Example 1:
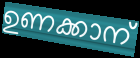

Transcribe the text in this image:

ഉണക്കാന്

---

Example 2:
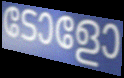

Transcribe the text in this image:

ടോളോ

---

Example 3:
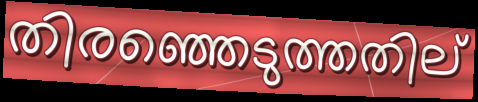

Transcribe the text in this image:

തിരഞ്ഞെടുത്തതില്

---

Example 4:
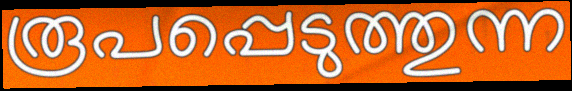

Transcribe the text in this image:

രൂപപ്പെടുത്തുന്ന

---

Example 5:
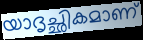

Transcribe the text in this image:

യാദൃച്ഛികമാണ്